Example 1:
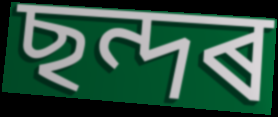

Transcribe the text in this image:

ছন্দৰ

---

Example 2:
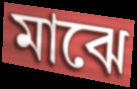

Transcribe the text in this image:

মাঝে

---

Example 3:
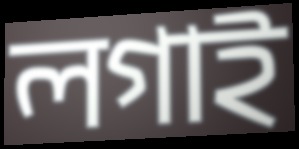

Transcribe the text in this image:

লগাই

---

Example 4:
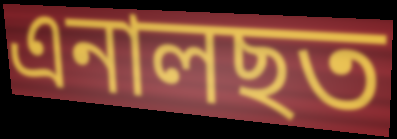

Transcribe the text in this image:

এনালছত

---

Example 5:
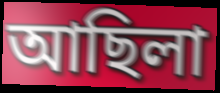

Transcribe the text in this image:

আছিলা